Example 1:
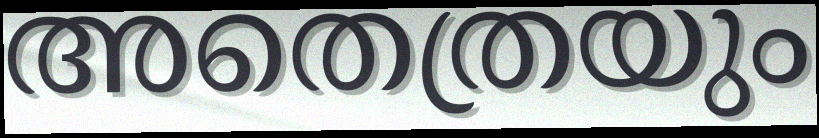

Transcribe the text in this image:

അതെത്രയും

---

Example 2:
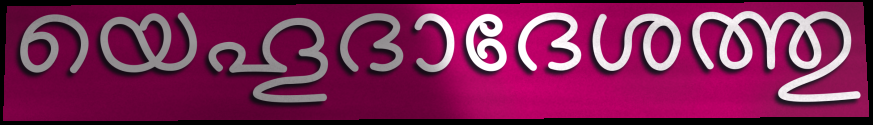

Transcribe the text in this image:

യെഹൂദാദേശത്തു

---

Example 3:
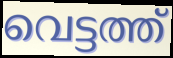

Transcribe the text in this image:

വെട്ടത്ത്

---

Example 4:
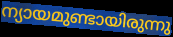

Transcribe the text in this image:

ന്യായമുണ്ടായിരുന്നു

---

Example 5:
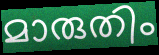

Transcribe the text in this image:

മാരുതിം